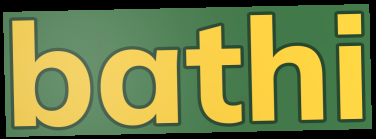
bathi